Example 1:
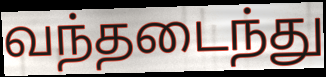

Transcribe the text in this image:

வந்தடைந்து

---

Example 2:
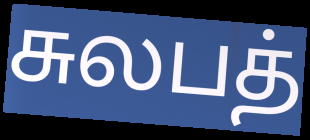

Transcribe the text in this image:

சுலபத்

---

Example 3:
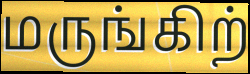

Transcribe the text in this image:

மருங்கிற்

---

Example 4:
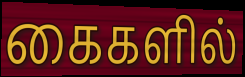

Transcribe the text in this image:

கைகளில்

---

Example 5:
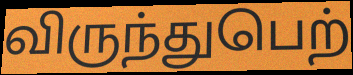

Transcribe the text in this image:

விருந்துபெற்